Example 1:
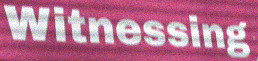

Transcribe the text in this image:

Witnessing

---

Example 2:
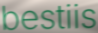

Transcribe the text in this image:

bestiis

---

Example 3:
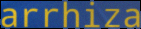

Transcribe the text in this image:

arrhiza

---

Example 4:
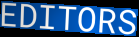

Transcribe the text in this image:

EDITORS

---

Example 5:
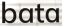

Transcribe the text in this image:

bata